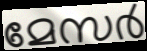
മേസർ